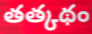
తత్కథం